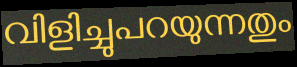
വിളിച്ചുപറയുന്നതും